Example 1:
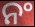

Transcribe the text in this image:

ନଂ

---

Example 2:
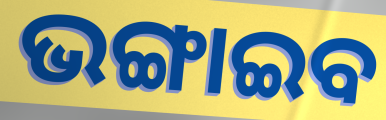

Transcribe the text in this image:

ଭଙ୍ଗାଇବ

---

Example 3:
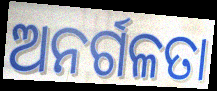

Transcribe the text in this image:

ଅନର୍ଗଳତା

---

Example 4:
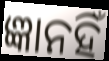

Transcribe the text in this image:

ଜ୍ଞାନହିଁ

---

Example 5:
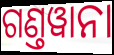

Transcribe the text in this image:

ଗଣ୍ତୱାନା